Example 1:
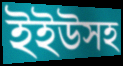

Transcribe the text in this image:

ইইউসহ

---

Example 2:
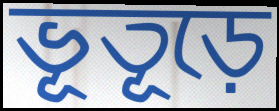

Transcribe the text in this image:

ভূতূড়ে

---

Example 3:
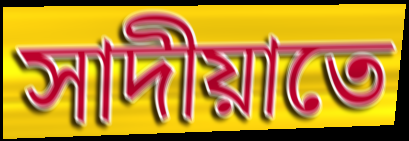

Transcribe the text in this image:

সাদীয়াতে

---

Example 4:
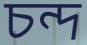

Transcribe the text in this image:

চন্দ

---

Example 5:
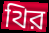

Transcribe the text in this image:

থির